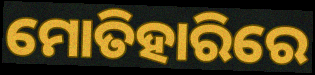
ମୋତିହାରିରେ